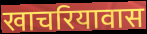
खाचरियावास